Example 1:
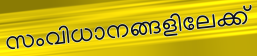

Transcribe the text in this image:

സംവിധാനങ്ങളിലേക്ക്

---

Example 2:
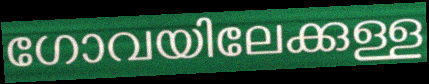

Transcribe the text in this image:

ഗോവയിലേക്കുള്ള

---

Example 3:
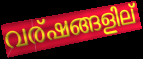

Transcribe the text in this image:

വര്ഷങ്ങളില്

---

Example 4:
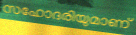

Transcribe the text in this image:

സഹോദരിയുമാണ്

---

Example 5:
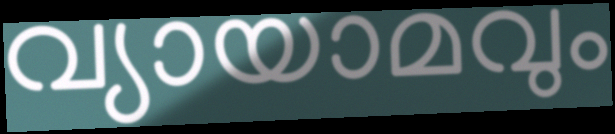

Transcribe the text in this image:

വ്യായാമവും